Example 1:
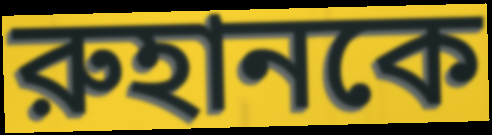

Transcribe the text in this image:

রুহানকে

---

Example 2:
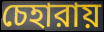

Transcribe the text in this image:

চেহারায়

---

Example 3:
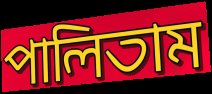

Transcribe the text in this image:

পালিতাম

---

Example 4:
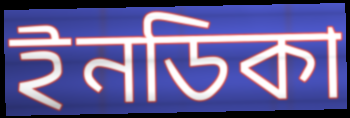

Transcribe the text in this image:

ইনডিকা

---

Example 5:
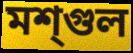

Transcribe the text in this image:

মশ্গুল